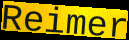
Reimer